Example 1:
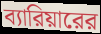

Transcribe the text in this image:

ব্যারিয়ারের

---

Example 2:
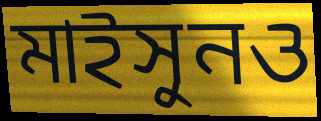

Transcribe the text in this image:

মাইসুনও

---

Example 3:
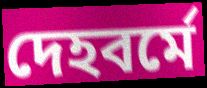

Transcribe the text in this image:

দেহবর্মে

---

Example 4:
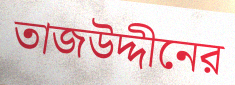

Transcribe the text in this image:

তাজউদ্দীনের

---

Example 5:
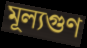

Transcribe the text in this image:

মূল্যগুণ